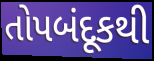
તોપબંદૂકથી